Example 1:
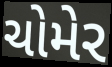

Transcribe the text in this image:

ચોમેર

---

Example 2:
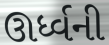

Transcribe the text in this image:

ઊર્ધ્વની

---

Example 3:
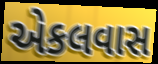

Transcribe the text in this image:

એકલવાસ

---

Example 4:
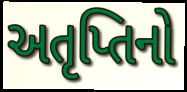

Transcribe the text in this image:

અતૃપ્તિનો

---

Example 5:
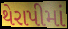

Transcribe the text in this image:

થેરાપીમાં